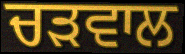
ਚੜਵਾਲ